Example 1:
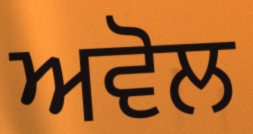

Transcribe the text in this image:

ਅਵੋਲ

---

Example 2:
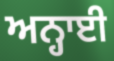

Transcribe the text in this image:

ਅਨ੍ਹਾਈ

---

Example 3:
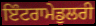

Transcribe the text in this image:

ਇੰਟਰਾਮੇਡੁਲਰੀ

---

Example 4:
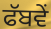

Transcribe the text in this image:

ਫੱਬਵੇਂ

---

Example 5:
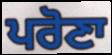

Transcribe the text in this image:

ਪਰੋਣਾ